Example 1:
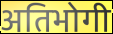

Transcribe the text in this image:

अतिभोगी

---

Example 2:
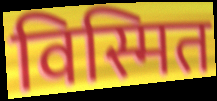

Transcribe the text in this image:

विस्मित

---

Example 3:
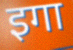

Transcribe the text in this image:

इगा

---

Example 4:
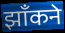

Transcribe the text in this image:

झाँकने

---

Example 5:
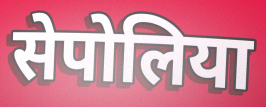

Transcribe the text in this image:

सेपोलिया